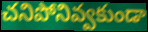
చనిపోనివ్వకుండా